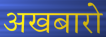
अखबारो